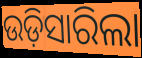
ଉଡ଼ିସାରିଲା